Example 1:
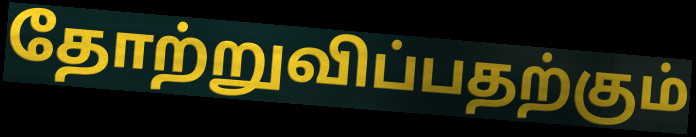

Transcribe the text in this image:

தோற்றுவிப்பதற்கும்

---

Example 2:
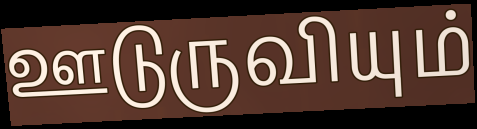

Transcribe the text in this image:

ஊடுருவியும்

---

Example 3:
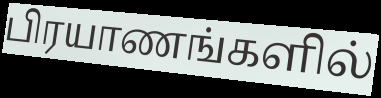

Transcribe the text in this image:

பிரயாணங்களில்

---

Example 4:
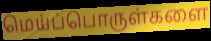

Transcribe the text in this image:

மெய்ப்பொருள்களை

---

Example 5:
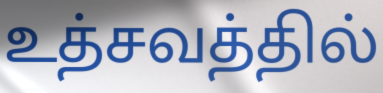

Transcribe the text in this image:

உத்சவத்தில்